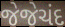
જેજેચંદ